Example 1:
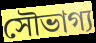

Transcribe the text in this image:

সৌভাগ্য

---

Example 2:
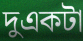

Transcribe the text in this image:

দুএকটা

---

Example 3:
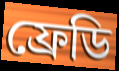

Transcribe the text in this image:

ফ্রেডি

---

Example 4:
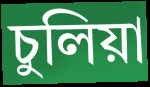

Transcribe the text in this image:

চুলিয়া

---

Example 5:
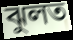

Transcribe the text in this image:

ঝুলত